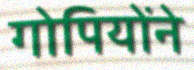
गोपियोंने